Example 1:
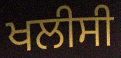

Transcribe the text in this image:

ਖਲੀਸੀ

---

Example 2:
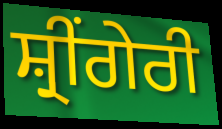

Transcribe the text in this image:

ਸ਼੍ਰੀਂਗੇਰੀ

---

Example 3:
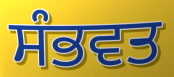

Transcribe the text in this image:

ਸੰਭਵਤ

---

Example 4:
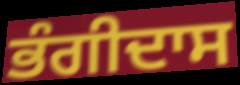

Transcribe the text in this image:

ਭੰਗੀਦਾਸ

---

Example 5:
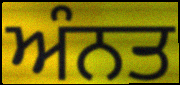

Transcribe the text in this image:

ਅੰਨਤ